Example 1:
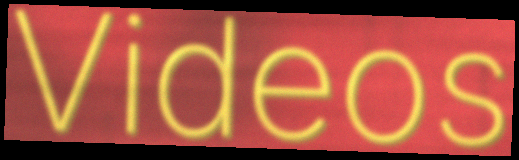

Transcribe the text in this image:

Videos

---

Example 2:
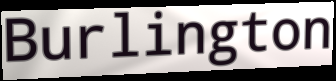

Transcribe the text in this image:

Burlington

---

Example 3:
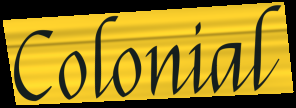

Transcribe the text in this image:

Colonial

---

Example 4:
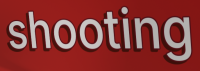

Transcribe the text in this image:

shooting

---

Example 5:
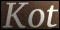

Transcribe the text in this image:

Kot